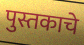
पुस्तकाचे